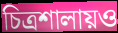
চিত্রশালায়ও